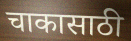
चाकासाठी